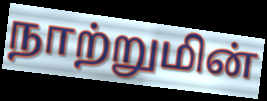
நாற்றுமின்